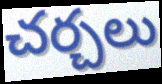
చర్చలు